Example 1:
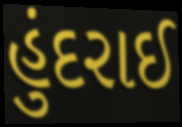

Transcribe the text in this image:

હુંદરાઈ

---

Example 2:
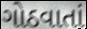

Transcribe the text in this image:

ગોઠવાતાં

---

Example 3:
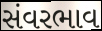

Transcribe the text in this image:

સંવરભાવ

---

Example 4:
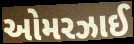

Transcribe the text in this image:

ઓમરઝાઈ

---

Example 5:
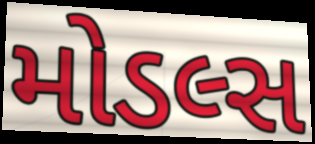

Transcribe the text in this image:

મોડલ્સ